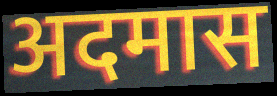
अदमास